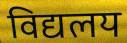
विद्यलय